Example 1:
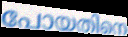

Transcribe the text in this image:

പോയതിനെ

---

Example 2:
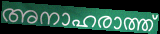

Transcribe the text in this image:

അനാഹരാത്ത്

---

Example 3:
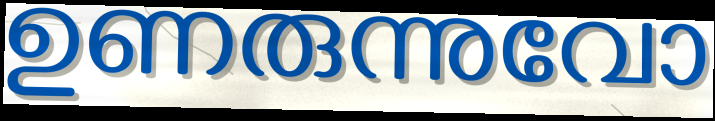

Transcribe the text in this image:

ഉണരുന്നുവോ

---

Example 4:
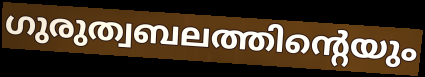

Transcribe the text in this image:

ഗുരുത്വബലത്തിന്റെയും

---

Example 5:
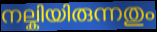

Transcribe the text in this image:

നല്കിയിരുന്നതും